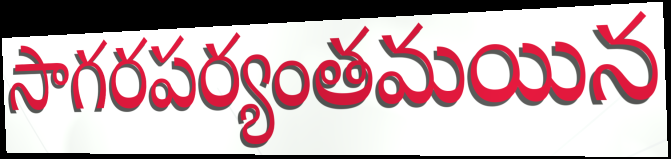
సాగరపర్యంతమయిన